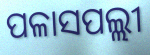
ପଳାସପଲ୍ଲୀ